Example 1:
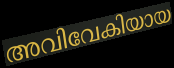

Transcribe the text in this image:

അവിവേകിയായ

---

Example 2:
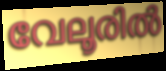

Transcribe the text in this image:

വേലൂരിൽ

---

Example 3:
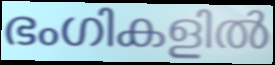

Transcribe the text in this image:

ഭംഗികളിൽ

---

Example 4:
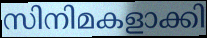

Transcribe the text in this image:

സിനിമകളാക്കി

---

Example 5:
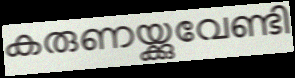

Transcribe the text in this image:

കരുണയ്ക്കുവേണ്ടി